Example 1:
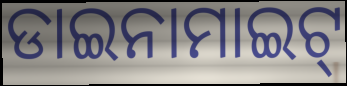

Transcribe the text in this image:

ଡାଇନାମାଇଟ୍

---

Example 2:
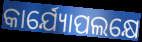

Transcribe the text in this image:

କାର୍ଯ୍ୟୋପଲକ୍ଷେ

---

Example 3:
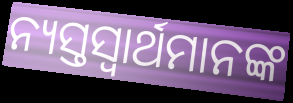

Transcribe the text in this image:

ନ୍ୟସ୍ତସ୍ଵାର୍ଥମାନଙ୍କ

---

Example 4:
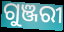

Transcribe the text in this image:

ଗୁଞ୍ଜରୀ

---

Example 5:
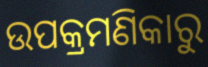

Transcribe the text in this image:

ଉପକ୍ରମଣିକାରୁ